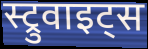
स्ट्रुवाइट्स